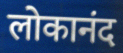
लोकानंद